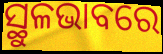
ସ୍ଥୁଳଭାବରେ